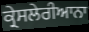
ਕ੍ਰੇਸਲੇਰੀਆਨਾ